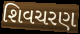
શિવચરણ